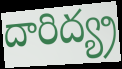
దారిద్య్ర